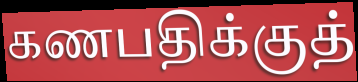
கணபதிக்குத்